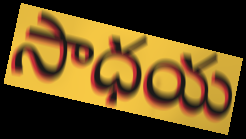
సాధయ